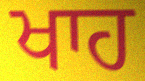
ਖਾਹ